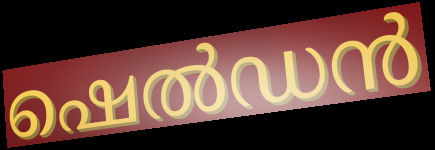
ഷെൽഡൻ